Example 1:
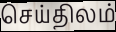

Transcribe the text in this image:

செய்திலம்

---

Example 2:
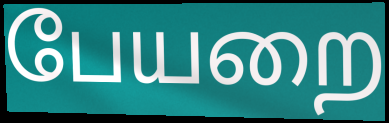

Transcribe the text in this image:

பேயறை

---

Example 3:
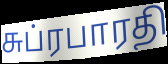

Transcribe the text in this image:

சுப்ரபாரதி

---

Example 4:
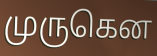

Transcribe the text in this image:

முருகென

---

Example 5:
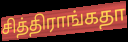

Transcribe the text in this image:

சித்திராங்கதா